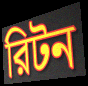
রিটন